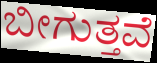
ಬೀಗುತ್ತವೆ